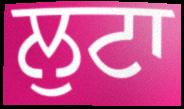
ਲੁਟਾ